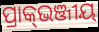
ପ୍ରାକ୍‌ଭଞ୍ଜୀୟ